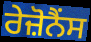
ਰੇਜ਼ੋਨੈਂਸ